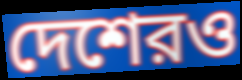
দেশেরও